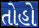
તોહો